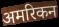
अमरिकन